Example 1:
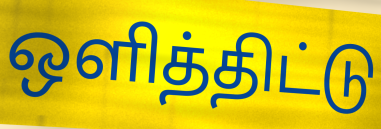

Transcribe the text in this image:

ஒளித்திட்டு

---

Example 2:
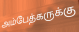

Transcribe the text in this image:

அம்பேத்கருக்கு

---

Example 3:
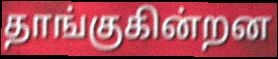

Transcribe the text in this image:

தாங்குகின்றன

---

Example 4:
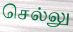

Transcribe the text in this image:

செல்லு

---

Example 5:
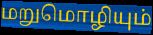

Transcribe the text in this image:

மறுமொழியும்